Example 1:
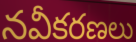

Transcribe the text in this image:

నవీకరణలు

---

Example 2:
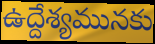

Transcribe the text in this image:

ఉద్దేశ్యమునకు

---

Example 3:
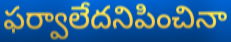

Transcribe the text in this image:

ఫర్వాలేదనిపించినా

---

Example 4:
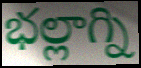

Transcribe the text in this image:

భల్లాగ్ని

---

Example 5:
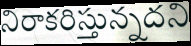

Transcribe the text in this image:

నిరాకరిస్తున్నదని